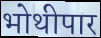
भोथीपार